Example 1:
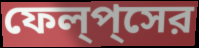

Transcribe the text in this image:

ফেল্‌প্‌সের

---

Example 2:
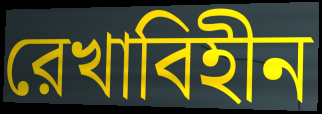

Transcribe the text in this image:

রেখাবিহীন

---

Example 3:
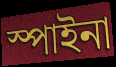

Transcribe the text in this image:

স্পাইনা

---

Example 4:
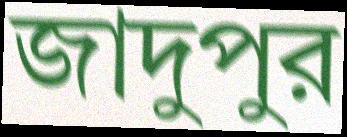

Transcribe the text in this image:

জাদুপুর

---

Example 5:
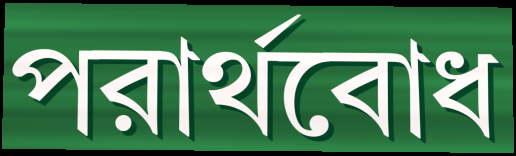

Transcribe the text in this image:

পরার্থবোধ